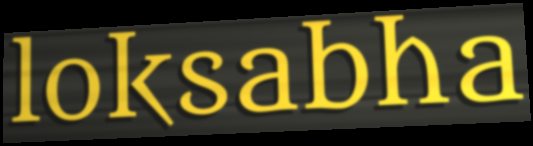
loksabha